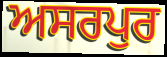
ਅਸਰਪੁਰ